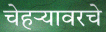
चेहऱ्यावरचे